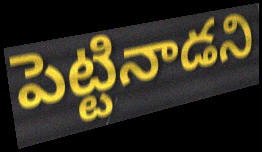
పెట్టినాడని